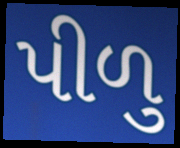
પીળુ